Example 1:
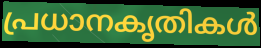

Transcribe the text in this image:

പ്രധാനകൃതികൾ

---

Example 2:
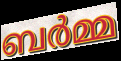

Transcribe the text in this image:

ബർമ്മ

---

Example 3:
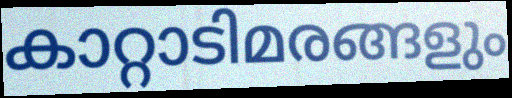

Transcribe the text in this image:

കാറ്റാടിമരങ്ങളും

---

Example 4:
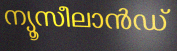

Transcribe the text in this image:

ന്യൂസീലാൻഡ്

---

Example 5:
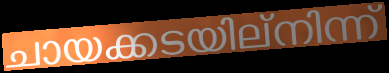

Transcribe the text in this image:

ചായക്കടയില്നിന്ന്